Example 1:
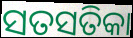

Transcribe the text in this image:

ସତସତିକା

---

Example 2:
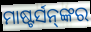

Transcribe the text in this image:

ମାଷ୍ଟର୍ସନ୍‌ଙ୍କର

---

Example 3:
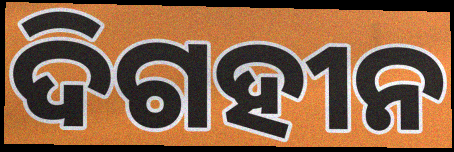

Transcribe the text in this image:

ଦିଗହୀନ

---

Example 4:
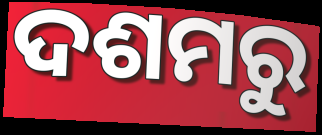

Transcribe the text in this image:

ଦଶମରୁ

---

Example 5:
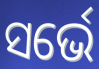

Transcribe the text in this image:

ସର୍ଭେ